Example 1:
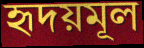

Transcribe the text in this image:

হৃদয়মূল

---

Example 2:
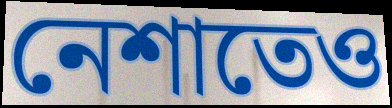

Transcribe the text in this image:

নেশাতেও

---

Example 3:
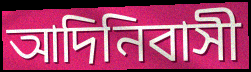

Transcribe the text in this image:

আদিনিবাসী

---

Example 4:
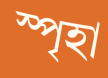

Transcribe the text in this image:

স্পৃহা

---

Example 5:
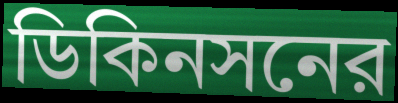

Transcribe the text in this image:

ডিকিনসনের